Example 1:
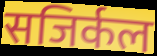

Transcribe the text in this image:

सजिर्कल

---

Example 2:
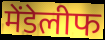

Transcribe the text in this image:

मेंडेलीफ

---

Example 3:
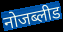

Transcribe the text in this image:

नोजब्लीड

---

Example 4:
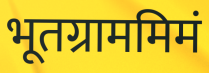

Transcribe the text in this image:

भूतग्राममिमं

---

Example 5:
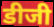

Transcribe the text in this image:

डीजी